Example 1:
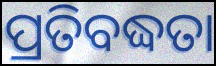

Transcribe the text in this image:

ପ୍ରତିବଦ୍ଧତା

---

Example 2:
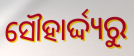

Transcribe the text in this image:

ସୌହାର୍ଦ୍ଦ୍ୟରୁ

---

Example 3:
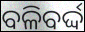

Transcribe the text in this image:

ବଳିବର୍ଦ୍ଦ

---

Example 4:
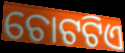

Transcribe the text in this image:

ଚୋଟଟିଏ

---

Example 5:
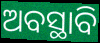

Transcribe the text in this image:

ଅବସ୍ଥାବି